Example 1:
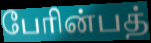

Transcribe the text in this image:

பேரின்பத்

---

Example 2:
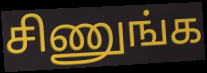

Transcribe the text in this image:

சிணுங்க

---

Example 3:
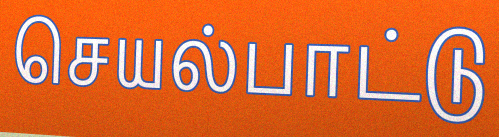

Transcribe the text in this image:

செயல்பாட்டு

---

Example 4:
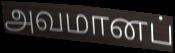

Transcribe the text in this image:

அவமானப்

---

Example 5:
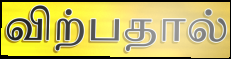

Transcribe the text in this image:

விற்பதால்